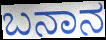
ಬನಾನ